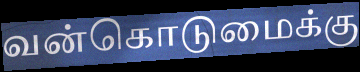
வன்கொடுமைக்கு